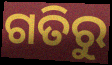
ଗତିରୁ